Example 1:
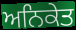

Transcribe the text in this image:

ਅਨਿਕੇਤ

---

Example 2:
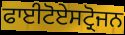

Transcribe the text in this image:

ਫਾਈਟੋਏਸਟ੍ਰੋਜਨ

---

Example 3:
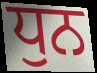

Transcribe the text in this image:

ਧੁਨ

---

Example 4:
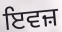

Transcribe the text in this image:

ਇਵਜ਼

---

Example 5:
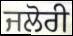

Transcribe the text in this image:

ਜਲੋਰੀ